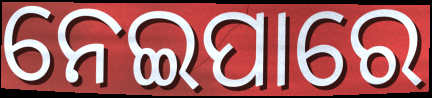
ନେଇପାରେ